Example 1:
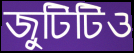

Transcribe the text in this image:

জুটিটিও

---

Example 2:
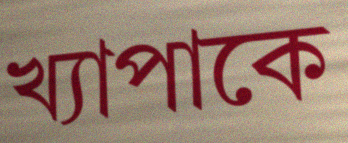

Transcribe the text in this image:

খ্যাপাকে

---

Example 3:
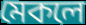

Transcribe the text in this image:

মেকলে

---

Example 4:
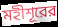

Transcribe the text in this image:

মহীশূরের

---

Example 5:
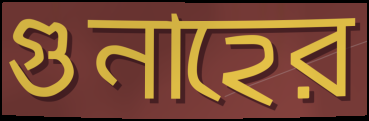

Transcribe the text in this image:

গুনাহের